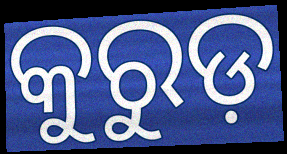
କୁରୁଡ଼